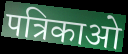
पत्रिकाओ